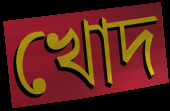
খোদ